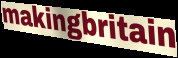
makingbritain